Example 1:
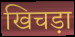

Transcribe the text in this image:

खिचड़ा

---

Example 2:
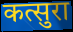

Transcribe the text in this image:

कत्सुरा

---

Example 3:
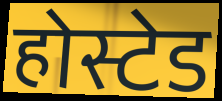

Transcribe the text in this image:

होस्टेड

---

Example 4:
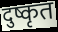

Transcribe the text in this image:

दुष्कृत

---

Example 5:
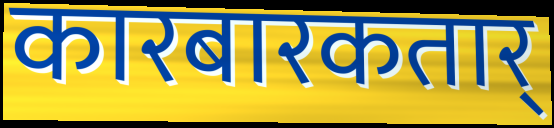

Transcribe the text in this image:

कारबारकतार्